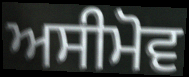
ਅਸੀਮੋਵ